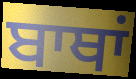
ਬਾਥਾਂ